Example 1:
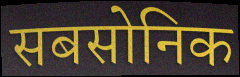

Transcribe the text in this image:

सबसोनिक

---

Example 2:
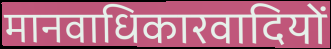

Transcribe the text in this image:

मानवाधिकारवादियों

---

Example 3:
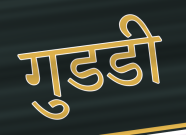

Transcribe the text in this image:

गुडडी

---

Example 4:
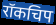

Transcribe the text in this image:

रॉकचिप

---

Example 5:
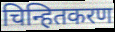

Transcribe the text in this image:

चिन्हितकरण